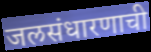
जलसंधारणाची